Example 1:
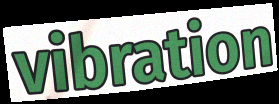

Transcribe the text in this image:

vibration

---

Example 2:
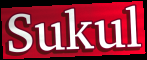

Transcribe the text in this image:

Sukul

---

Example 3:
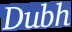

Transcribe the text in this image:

Dubh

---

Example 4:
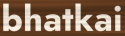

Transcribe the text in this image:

bhatkai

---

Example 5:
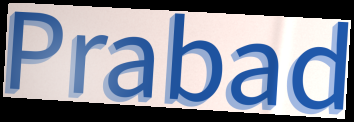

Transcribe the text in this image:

Prabad